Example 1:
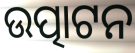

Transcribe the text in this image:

ଉତ୍ପାଟନ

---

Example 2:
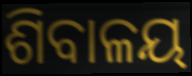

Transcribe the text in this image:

ଶିବାଳୟ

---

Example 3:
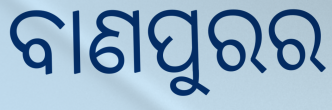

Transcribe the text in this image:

ବାଣପୁରର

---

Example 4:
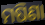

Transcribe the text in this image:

ମଷିଣା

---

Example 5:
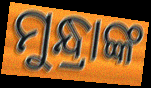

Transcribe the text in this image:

ମୁନ୍ଧ୍ରାଙ୍କ